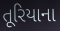
તૂરિયાના